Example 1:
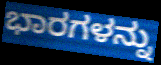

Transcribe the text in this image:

ಭಾರಗಳನ್ನು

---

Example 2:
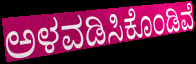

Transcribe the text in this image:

ಅಳವಡಿಸಿಕೊಂಡಿವೆ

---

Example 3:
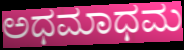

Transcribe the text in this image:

ಅಧಮಾಧಮ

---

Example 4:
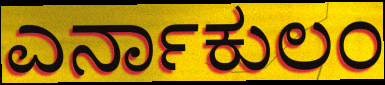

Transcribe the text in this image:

ಎರ್ನಾಕುಲಂ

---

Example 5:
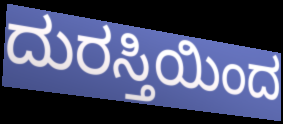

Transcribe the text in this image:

ದುರಸ್ತಿಯಿಂದ